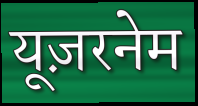
यूज़रनेम